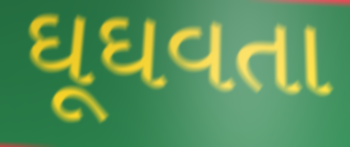
ઘૂઘવતા